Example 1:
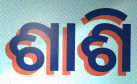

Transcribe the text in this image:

ଶାଶି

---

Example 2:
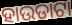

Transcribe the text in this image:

ହାଉଡାଟା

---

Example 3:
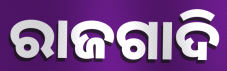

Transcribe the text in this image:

ରାଜଗାଦି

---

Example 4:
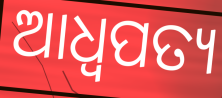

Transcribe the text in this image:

ଆଧ୍ଵପତ୍ୟ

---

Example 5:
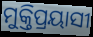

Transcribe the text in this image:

ମୁକ୍ତିପ୍ରୟାସୀ